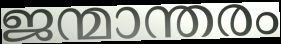
ജന്മാന്തരം